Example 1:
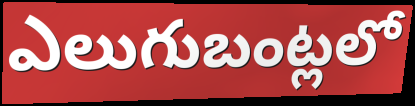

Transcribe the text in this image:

ఎలుగుబంట్లలో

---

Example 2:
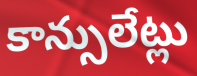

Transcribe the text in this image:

కాన్సులేట్లు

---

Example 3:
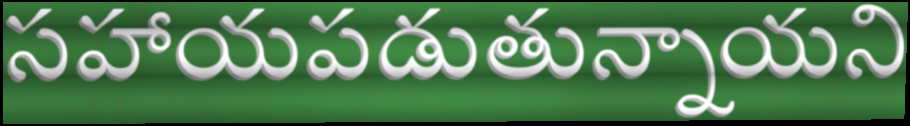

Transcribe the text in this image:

సహాయపడుతున్నాయని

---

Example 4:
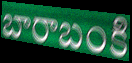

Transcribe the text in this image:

బారాబంకి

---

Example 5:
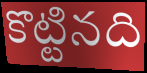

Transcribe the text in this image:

కొట్టినది